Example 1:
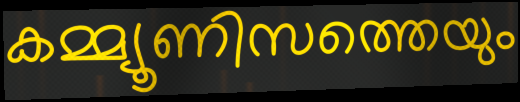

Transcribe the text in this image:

കമ്മ്യൂണിസത്തെയും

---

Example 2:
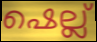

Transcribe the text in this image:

ഷെല്ല്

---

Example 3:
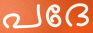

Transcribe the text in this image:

പദേ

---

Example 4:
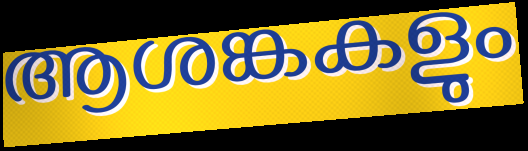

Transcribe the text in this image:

ആശങ്കകളും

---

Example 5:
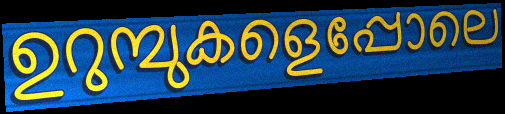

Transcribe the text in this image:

ഉറുമ്പുകളെപ്പോലെ